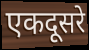
एकदूसरे